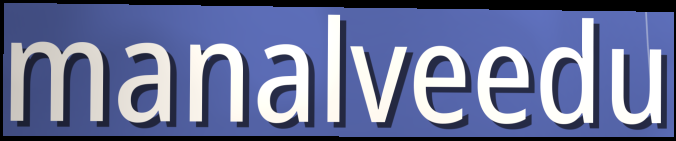
manalveedu